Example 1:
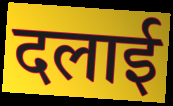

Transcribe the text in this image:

दलाई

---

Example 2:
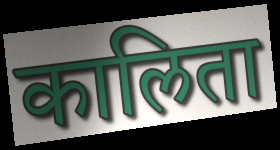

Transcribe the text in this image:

कालिता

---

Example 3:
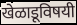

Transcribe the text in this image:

खेळाडूविषयी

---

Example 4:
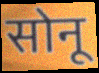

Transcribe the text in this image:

सोनू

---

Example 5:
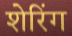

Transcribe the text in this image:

शेरिंग